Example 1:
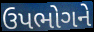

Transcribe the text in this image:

ઉપભોગને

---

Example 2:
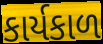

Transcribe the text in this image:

કાર્યકાળ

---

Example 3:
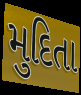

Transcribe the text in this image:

મુદિતા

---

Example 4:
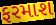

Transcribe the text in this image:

ફરમાશ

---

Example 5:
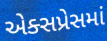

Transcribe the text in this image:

એક્સપ્રેસમાં